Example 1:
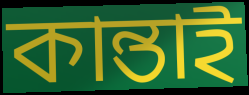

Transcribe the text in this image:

কান্তাই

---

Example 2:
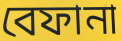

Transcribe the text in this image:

বেফানা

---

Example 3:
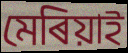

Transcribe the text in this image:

মেৰিয়াই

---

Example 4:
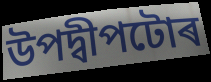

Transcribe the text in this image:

উপদ্বীপটোৰ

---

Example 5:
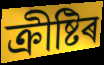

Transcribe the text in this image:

ক্ৰীষ্টিৰ